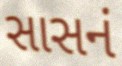
સાસનં